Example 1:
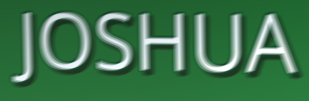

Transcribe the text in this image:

JOSHUA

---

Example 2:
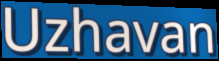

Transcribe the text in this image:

Uzhavan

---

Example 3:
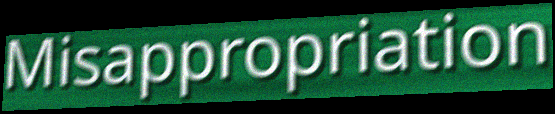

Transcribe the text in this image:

Misappropriation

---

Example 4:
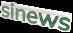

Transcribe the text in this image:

sinews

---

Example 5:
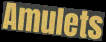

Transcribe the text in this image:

Amulets